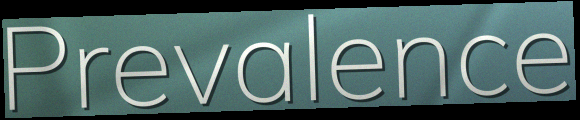
Prevalence